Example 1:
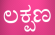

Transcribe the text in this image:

ಲಕ್ಪಣ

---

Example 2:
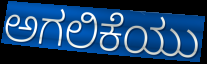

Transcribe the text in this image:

ಅಗಲಿಕೆಯು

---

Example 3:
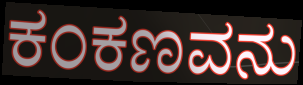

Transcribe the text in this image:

ಕಂಕಣವನು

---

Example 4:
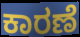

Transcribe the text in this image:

ಕಾರಣೆ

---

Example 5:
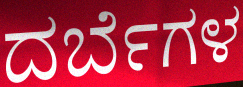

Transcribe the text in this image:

ದರ್ಬೆಗಳ